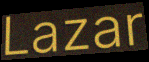
Lazar